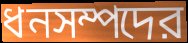
ধনসম্পদের